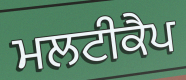
ਮਲਟੀਕੈਪ